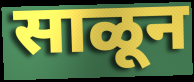
साळून